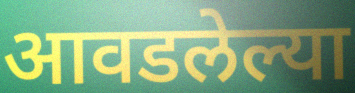
आवडलेल्या